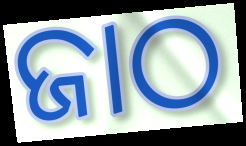
ଜାଠ